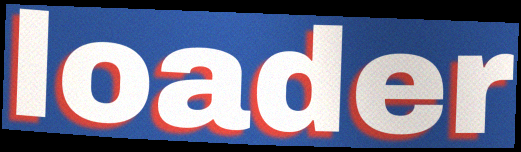
loader